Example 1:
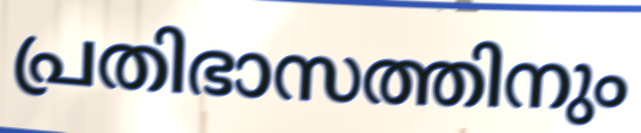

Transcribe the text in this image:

പ്രതിഭാസത്തിനും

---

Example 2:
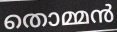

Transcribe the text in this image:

തൊമ്മൻ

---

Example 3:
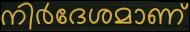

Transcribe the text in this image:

നിർദേശമാണ്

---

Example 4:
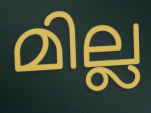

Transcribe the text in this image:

മില്ല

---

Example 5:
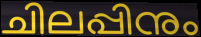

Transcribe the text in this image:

ചിലപ്പിനും